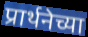
प्रार्थनेच्या